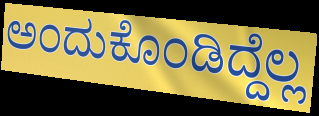
ಅಂದುಕೊಂಡಿದ್ದೆಲ್ಲ